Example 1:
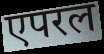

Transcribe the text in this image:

एपरल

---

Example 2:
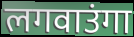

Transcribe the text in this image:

लगवाउंगा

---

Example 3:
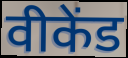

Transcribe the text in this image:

वीकेंड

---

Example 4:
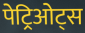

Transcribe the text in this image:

पेट्रिओट्स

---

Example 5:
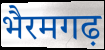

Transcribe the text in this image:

भैरमगढ़